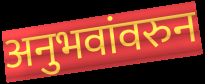
अनुभवांवरुन